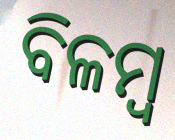
ବିଳମ୍ଵ